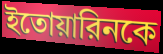
ইতোয়ারিনকে